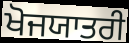
ਖੋਜਯਾਤਰੀ